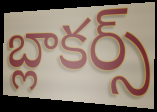
బ్లాకర్స్